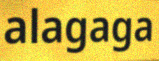
alagaga